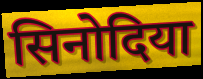
सिनोदिया